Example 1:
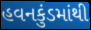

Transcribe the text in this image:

હવનકુંડમાંથી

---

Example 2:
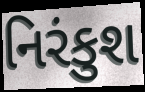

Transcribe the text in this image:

નિરંકુશ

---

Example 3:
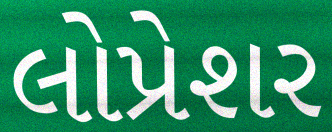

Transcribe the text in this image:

લોપ્રેશર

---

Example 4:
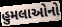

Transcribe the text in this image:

હુમલાઓનો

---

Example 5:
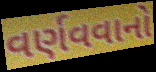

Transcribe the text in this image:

વર્ણવવાનો